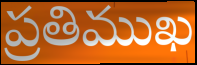
ప్రతిముఖ